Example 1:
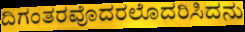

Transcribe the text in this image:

ದಿಗಂತರವೊದರಲೊದರಿಸಿದನು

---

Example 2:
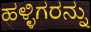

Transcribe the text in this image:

ಹಳ್ಳಿಗರನ್ನು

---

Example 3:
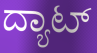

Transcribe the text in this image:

ದ್ಯಾಟ್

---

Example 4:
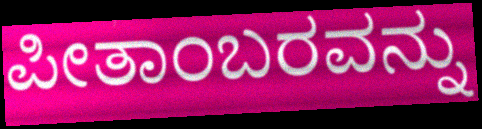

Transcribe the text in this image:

ಪೀತಾಂಬರವನ್ನು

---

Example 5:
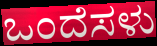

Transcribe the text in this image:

ಒಂದೆಸಳು